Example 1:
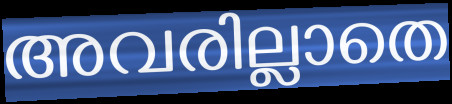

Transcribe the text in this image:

അവരില്ലാതെ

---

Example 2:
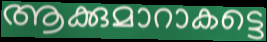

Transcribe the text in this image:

ആക്കുമാറാകട്ടെ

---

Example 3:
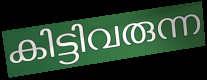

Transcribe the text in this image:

കിട്ടിവരുന്ന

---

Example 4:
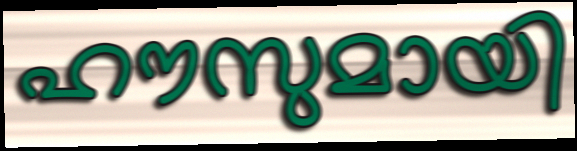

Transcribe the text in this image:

ഹൗസുമായി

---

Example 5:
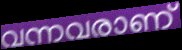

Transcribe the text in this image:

വന്നവരാണ്